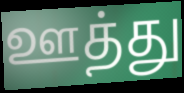
ஊத்து